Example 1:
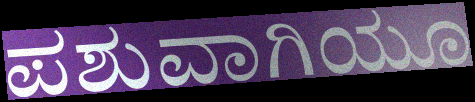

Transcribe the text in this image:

ಪಶುವಾಗಿಯೂ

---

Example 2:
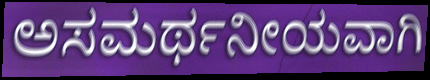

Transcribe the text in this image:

ಅಸಮರ್ಥನೀಯವಾಗಿ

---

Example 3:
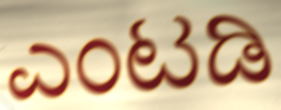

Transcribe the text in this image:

ಎಂಟಡಿ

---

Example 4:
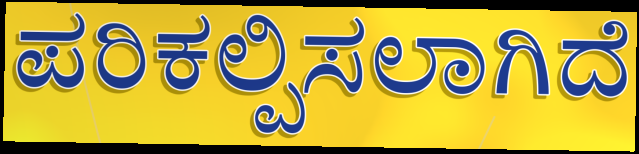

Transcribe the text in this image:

ಪರಿಕಲ್ಪಿಸಲಾಗಿದೆ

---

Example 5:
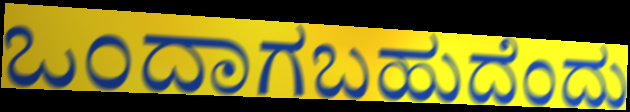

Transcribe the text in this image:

ಒಂದಾಗಬಹುದೆಂದು